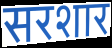
सरशार